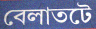
বেলাতটে